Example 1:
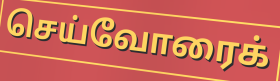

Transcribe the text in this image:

செய்வோரைக்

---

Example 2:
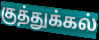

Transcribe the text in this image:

குத்துக்கல்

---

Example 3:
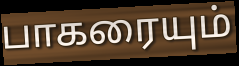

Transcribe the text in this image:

பாகரையும்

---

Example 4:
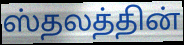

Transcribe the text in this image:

ஸ்தலத்தின்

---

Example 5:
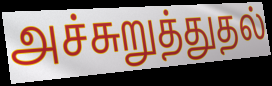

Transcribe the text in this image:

அச்சுறுத்துதல்